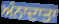
ਅੰਨਾਦਾਤਾ